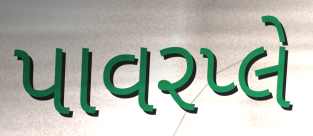
પાવરપ્લે